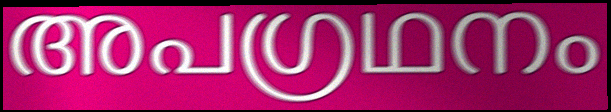
അപഗ്രഥനം